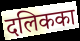
दलिकका